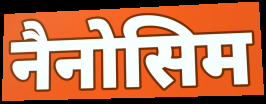
नैनोसिम